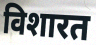
विशारत